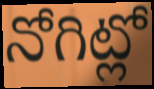
నోగిట్లో